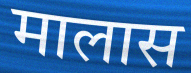
मालास